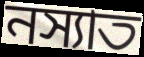
নস্যাত